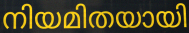
നിയമിതയായി